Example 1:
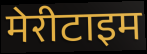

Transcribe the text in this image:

मेरीटाइम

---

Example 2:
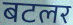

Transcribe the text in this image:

बटलर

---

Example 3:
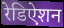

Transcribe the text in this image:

रेडिऐशन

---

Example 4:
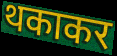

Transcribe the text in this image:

थकाकर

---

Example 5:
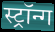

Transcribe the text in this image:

स्ट्रॉन्ग